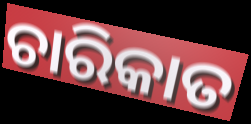
ଚାରିକାତ